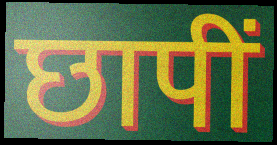
छापीं